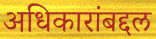
अधिकारांबद्दल